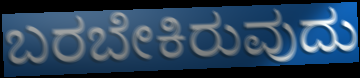
ಬರಬೇಕಿರುವುದು